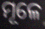
ମୂଳେ